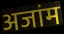
अजांम